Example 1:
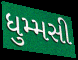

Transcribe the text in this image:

ધુમ્મસી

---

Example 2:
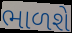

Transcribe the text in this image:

ભાળશે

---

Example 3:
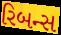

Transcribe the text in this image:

રિબન્સ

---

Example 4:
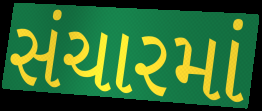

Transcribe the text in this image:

સંચારમાં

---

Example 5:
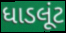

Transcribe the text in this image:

ધાડલૂંટ